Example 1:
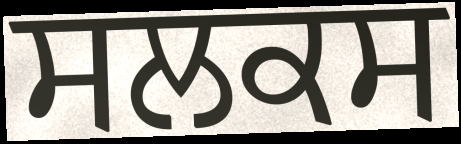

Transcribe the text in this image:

ਸਲਕਸ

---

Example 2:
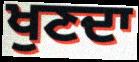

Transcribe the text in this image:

ਖੁਣਦਾ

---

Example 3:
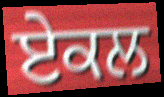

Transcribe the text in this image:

ਏਕਲ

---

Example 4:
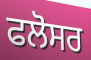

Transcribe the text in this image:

ਫਲੋਸਰ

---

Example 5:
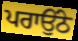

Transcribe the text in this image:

ਪਰਾਉਂਠੇ